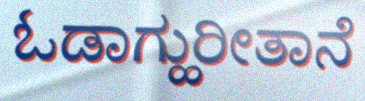
ಓಡಾಗ್ಹುರೀತಾನೆ